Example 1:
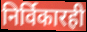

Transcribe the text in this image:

निर्विकारही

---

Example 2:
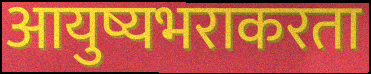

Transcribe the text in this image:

आयुष्यभराकरता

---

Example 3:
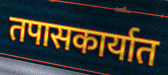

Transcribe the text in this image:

तपासकार्यात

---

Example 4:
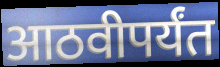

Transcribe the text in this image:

आठवीपर्यंत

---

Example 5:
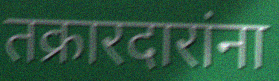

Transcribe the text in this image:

तक्रारदारांना